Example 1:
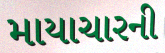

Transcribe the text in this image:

માયાચારની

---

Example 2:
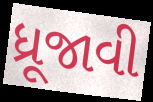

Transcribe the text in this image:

ધ્રૂજાવી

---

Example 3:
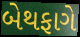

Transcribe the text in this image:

બેથફાગે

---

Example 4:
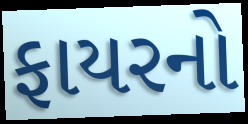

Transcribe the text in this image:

ફાયરનો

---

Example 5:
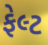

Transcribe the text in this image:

ફેલ્ટ